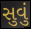
સુવું